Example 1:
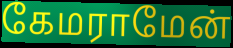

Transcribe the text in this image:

கேமராமேன்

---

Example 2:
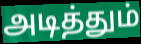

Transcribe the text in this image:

அடித்தும்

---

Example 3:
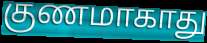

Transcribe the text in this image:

குணமாகாது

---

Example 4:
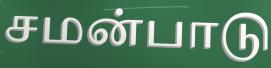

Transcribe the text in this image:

சமன்பாடு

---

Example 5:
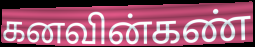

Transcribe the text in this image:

கனவின்கண்